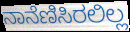
ನಾನೆಣಿಸಿರಲಿಲ್ಲ